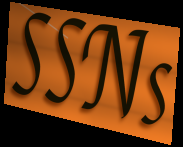
SSNs